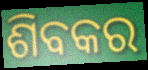
ଶିବକର